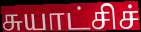
சுயாட்சிச்